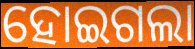
ହୋଇଗଲା